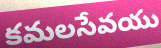
కమలసేవయు